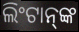
ଲିଂଟାନ୍‍ଙ୍କ